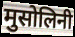
मुसोलिनी